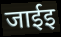
जाईइ